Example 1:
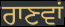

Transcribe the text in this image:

ਰਾਣਵਾਂ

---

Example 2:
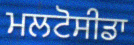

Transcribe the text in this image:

ਮਲਟੋਸੀਡਾ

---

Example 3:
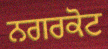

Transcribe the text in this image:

ਨਗਰਕੋਟ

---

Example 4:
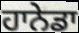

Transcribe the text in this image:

ਹਾਨੇਡਾ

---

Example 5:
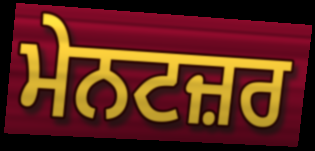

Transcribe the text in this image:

ਮੇਨਟਜ਼ਰ